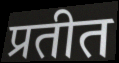
प्रतीत